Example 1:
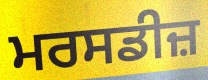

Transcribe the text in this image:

ਮਰਸਡੀਜ਼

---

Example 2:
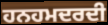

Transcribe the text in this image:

ਹਨਹਮਦਰਦੀ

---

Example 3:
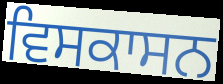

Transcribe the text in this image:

ਵਿਸਕਾਸਨ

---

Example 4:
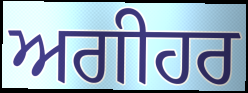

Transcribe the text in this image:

ਅਗੀਹਰ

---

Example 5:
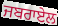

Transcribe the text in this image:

ਜਬਰਾਏਲ